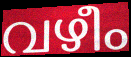
വഴീം